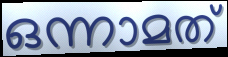
ഒന്നാമത്